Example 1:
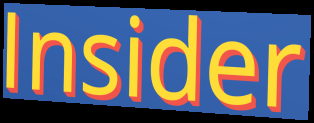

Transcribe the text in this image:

Insider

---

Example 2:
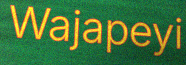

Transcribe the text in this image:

Wajapeyi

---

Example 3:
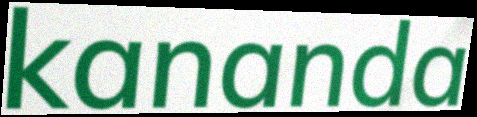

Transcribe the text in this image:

kananda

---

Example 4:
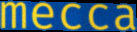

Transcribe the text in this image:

mecca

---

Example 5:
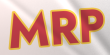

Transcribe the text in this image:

MRP